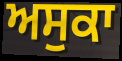
ਅਸੁਕਾ